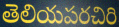
తెలియపరచిరి